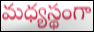
మధ్యస్థంగా